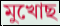
মুখোছ